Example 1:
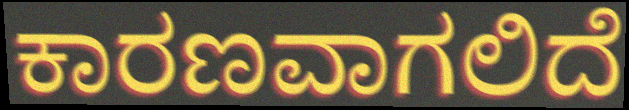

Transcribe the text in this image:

ಕಾರಣವಾಗಲಿದೆ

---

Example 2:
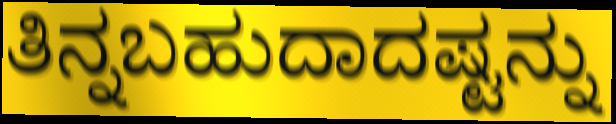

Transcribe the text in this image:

ತಿನ್ನಬಹುದಾದಷ್ಟನ್ನು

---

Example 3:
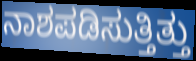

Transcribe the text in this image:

ನಾಶಪಡಿಸುತ್ತಿತ್ತು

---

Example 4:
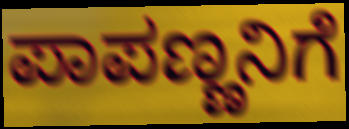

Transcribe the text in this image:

ಪಾಪಣ್ಣನಿಗೆ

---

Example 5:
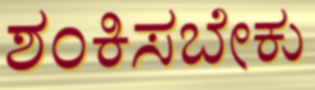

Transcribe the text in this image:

ಶಂಕಿಸಬೇಕು